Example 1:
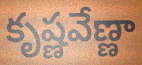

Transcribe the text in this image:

కృష్ణవేణ్ణా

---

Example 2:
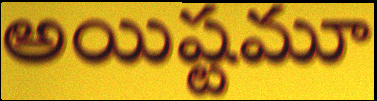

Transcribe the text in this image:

అయిష్టమూ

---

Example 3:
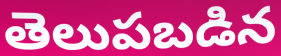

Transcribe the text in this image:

తెలుపబడిన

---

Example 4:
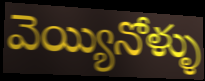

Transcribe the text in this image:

వెయ్యినోళ్ళు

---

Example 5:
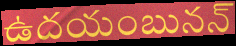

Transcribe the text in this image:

ఉదయంబునన్